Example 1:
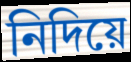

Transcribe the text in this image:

নিদিয়ে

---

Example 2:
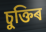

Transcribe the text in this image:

চুক্তিৰ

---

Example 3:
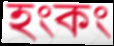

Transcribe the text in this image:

হংকং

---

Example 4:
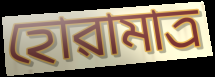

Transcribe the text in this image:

হোৱামাত্ৰ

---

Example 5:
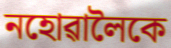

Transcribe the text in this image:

নহোৱালৈকে